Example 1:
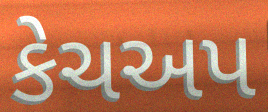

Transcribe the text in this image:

કેચઅપ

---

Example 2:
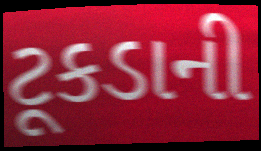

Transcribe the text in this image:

ટૂકડાની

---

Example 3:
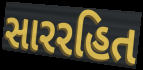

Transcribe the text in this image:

સારરહિત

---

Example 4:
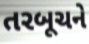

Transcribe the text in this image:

તરબૂચને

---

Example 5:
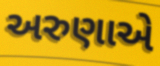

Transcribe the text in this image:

અરુણાએ